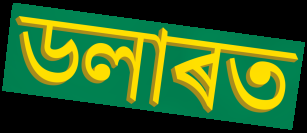
ডলাৰত